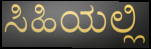
ಸಿಹಿಯಲ್ಲಿ